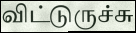
விட்டுருச்சு